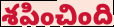
శపించింది